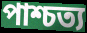
পাশ্চত্য